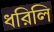
ধরিলি